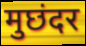
मुछंदर